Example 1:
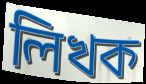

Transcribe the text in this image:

লিখক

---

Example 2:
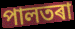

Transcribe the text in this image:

পালতৰা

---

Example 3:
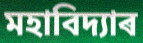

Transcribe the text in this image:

মহাবিদ্যাৰ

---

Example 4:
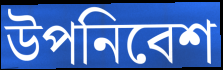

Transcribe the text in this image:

উপনিবেশ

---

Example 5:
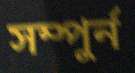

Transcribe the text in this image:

সম্পুৰ্ন